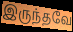
இருந்தவே